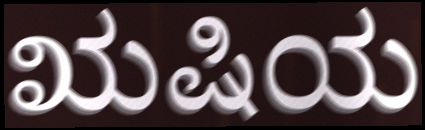
ಋಷಿಯ